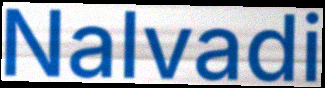
Nalvadi